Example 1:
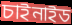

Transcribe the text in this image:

চাইনাইড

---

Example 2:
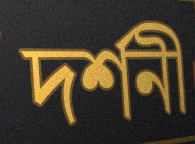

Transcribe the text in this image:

দৰ্শনী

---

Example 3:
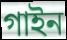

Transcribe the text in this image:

গাইন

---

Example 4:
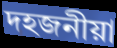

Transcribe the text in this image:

দহজনীয়া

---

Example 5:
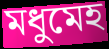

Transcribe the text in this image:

মধুমেহ